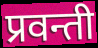
प्रवन्ती